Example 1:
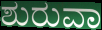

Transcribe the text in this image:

ಶುರುವಾ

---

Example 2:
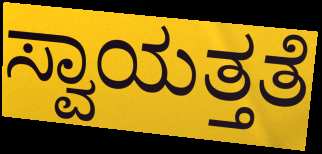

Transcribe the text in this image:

ಸ್ವಾಯತ್ತತೆ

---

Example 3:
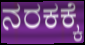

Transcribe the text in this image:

ನರಕಕ್ಕೆ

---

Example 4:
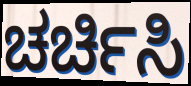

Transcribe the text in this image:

ಚರ್ಚಿಸಿ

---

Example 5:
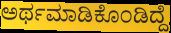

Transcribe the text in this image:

ಅರ್ಥಮಾಡಿಕೊಂಡಿದ್ದೆ